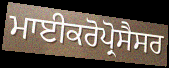
ਮਾਈਕਰੋਪ੍ਰੋਸੈਸਰ